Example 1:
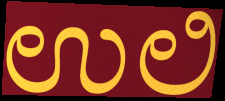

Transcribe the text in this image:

ಉಲಿ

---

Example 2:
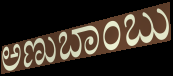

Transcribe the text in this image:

ಅಣುಬಾಂಬು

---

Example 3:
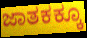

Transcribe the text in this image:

ಜಾತಕಕ್ಕೂ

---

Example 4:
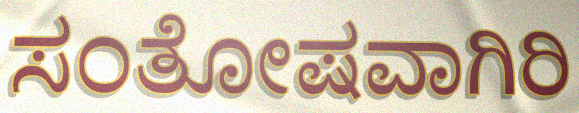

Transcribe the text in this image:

ಸಂತೋಷವಾಗಿರಿ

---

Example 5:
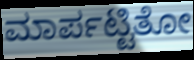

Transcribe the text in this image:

ಮಾರ್ಪಟ್ಟಿತೋ